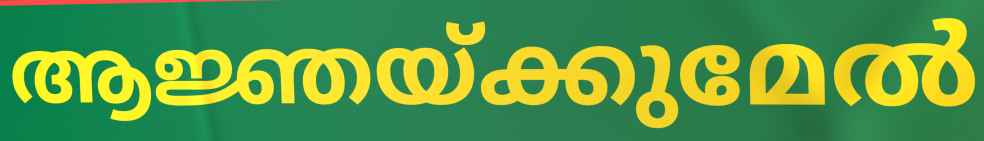
ആജ്ഞയ്ക്കുമേൽ